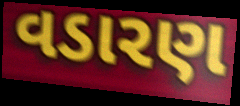
વડારણ